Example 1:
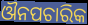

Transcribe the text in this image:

ଔନପଚାରିକ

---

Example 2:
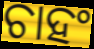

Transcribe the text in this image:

ଚାହଂ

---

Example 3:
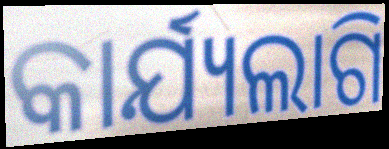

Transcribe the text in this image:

କାର୍ଯ୍ୟଲାଗି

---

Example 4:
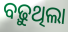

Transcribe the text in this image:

ବଢ଼ୁଥିଲା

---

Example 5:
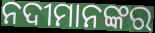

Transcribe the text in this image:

ନଦୀମାନଙ୍କର